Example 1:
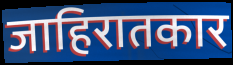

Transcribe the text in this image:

जाहिरातकार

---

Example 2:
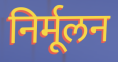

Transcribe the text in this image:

निर्मूलन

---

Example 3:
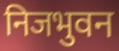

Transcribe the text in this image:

निजभुवन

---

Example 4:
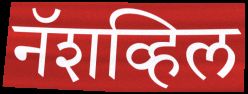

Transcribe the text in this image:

नॅशव्हिल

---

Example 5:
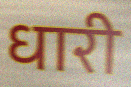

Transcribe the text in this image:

धारी